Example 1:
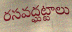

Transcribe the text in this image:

రసవద్ఘట్టాలు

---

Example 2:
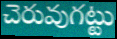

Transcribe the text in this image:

చెరువుగట్టు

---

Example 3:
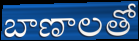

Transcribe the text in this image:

బాణాలతో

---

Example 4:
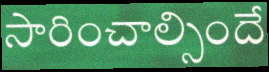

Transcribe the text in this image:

సారించాల్సిందే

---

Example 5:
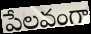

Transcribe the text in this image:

పేలవంగా